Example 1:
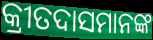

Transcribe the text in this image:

କ୍ରୀତଦାସମାନଙ୍କ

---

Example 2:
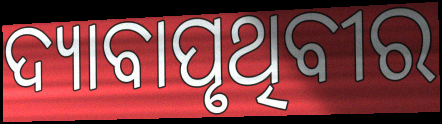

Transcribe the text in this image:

ଦ୍ୟାବାପୃଥିବୀର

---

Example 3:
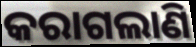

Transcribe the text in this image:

କରାଗଲାଣି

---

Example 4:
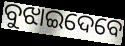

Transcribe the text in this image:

ବୁଝାଇଦେବେ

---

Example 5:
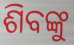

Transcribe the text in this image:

ଶିବଙ୍କୁ